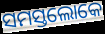
ସମସ୍ତଲୋକେ